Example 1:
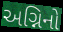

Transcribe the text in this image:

અગ્નિનો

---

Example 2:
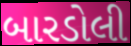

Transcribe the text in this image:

બારડોલી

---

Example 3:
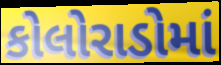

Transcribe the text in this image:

કોલોરાડોમાં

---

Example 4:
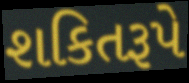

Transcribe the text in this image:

શકિતરૂપે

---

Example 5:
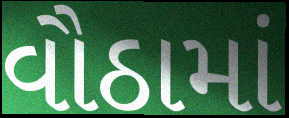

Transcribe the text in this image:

વૌઠામાં